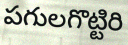
పగులగొట్టిరి